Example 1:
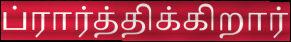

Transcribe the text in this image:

ப்ரார்த்திக்கிறார்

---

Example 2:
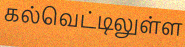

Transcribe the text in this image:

கல்வெட்டிலுள்ள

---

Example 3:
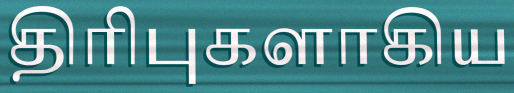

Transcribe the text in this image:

திரிபுகளாகிய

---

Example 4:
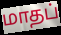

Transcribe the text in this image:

மாதப்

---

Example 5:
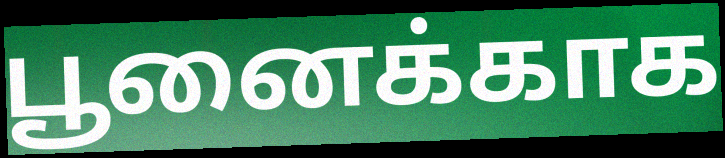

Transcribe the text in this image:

பூனைக்காக